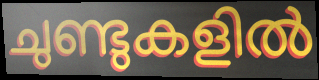
ചുണ്ടുകളിൽ